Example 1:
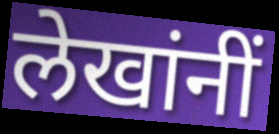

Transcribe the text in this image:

लेखांनीं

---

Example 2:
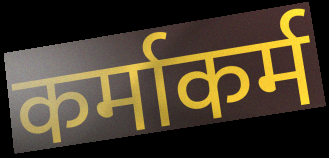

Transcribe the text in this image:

कर्माकर्म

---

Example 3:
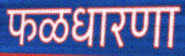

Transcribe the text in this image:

फळधारणा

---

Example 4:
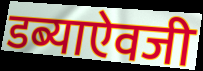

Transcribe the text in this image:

डब्याऐवजी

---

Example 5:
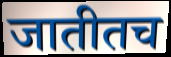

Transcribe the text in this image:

जातीतच